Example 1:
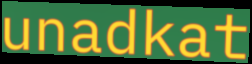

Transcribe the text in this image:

unadkat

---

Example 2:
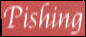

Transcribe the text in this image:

Pishing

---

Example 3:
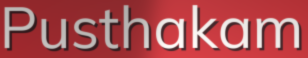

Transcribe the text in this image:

Pusthakam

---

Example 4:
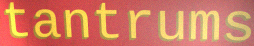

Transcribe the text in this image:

tantrums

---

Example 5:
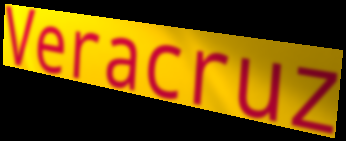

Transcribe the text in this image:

Veracruz